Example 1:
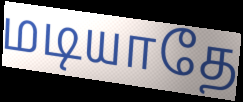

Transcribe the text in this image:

மடியாதே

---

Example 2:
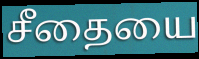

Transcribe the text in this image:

சீதையை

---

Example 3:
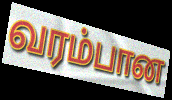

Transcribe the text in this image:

வரம்பான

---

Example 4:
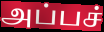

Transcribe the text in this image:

அப்பச்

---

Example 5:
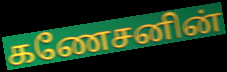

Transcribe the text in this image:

கணேசனின்